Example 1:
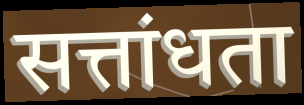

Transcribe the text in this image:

सत्तांधता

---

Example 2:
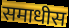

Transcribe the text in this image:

समाधीस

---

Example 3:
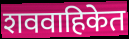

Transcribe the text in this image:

शववाहिकेत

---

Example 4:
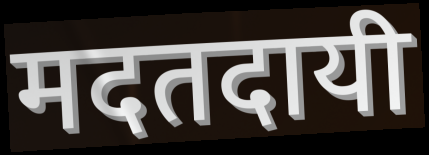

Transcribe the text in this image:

मदतदायी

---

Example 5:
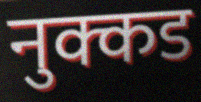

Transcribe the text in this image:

नुक्कड